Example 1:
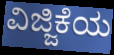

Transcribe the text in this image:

ವಿಜ್ಜಿಕೆಯ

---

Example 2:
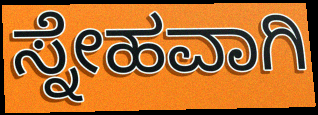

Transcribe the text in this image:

ಸ್ನೇಹವಾಗಿ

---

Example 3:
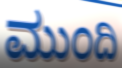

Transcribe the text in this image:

ಮುಂದಿ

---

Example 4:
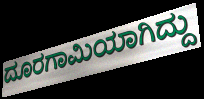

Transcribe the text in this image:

ದೂರಗಾಮಿಯಾಗಿದ್ದು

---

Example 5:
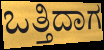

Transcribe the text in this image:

ಒತ್ತಿದಾಗ